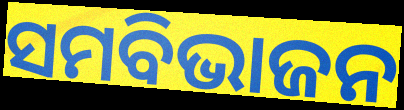
ସମବିଭାଜନ